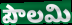
పౌలమి